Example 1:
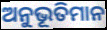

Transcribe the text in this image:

ଅନୁଭୂତିମାନ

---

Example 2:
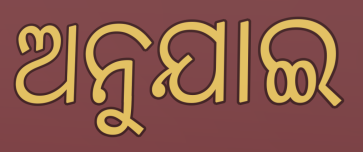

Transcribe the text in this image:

ଅନୁଯାଇ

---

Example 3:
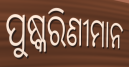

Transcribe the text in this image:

ପୁଷ୍କରିଣୀମାନ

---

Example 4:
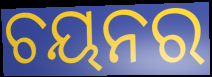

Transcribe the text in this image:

ଚୟନର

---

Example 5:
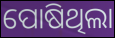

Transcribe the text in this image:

ପୋଷିଥିଲା